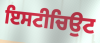
ਇਸਟੀਚਿਉਟ